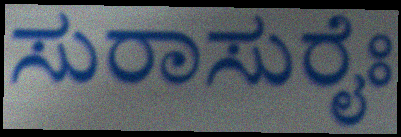
ಸುರಾಸುರೈಃ